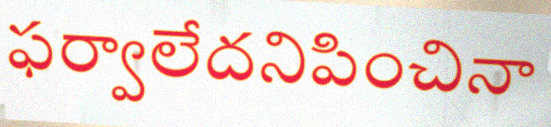
ఫర్వాలేదనిపించినా